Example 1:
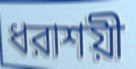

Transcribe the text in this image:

ধরাশয়ী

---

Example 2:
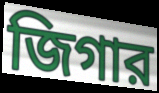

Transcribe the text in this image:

জিগার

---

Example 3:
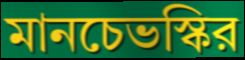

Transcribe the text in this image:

মানচেভস্কির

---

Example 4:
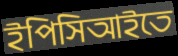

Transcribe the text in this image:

ইপিসিআইতে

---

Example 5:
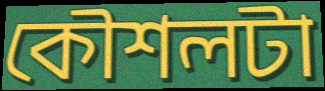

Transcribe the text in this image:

কৌশলটা